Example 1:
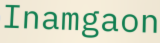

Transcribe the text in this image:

Inamgaon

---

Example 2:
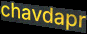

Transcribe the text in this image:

chavdapr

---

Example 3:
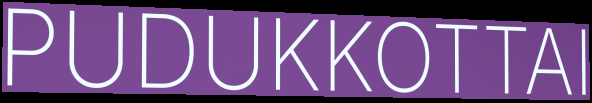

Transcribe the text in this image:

PUDUKKOTTAI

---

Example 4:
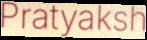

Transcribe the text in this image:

Pratyaksh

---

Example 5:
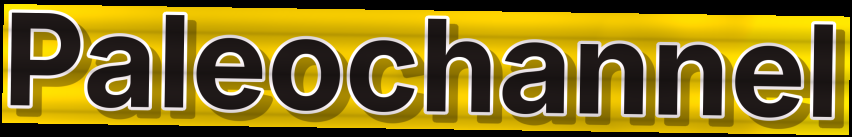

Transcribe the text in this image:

Paleochannel